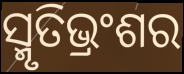
ସ୍ମୃତିଭ୍ରଂଶର